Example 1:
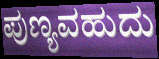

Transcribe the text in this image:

ಪುಣ್ಯವಹುದು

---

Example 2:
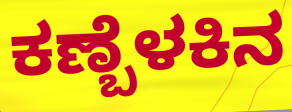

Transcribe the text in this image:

ಕಣ್ಬೆಳಕಿನ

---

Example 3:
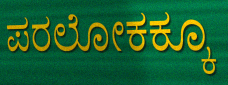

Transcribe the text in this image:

ಪರಲೋಕಕ್ಕೂ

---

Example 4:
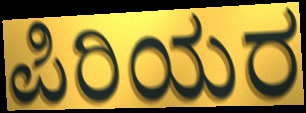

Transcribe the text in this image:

ಪಿರಿಯರ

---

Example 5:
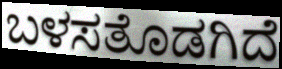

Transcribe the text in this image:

ಬಳಸತೊಡಗಿದೆ